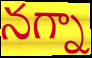
నగ్నా